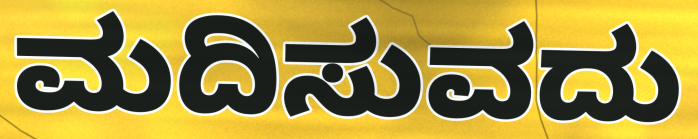
ಮದಿಸುವದು